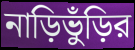
নাড়িভুঁড়ির